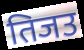
तिजउ